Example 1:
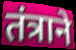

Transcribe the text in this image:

तंत्राने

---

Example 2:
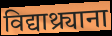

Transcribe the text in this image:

विद्याथ्र्याना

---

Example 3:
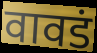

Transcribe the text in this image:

वावडं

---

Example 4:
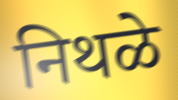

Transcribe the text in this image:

निथळे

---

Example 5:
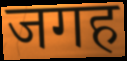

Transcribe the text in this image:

जगह